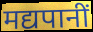
मद्यपानीं